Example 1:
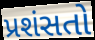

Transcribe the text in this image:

પ્રશંસતો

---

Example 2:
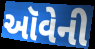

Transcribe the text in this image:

ઑવેની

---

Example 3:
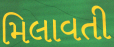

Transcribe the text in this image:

મિલાવતી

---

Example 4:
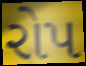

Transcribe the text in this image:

રોપ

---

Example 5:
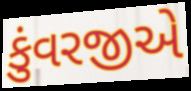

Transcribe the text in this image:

કુંવરજીએ